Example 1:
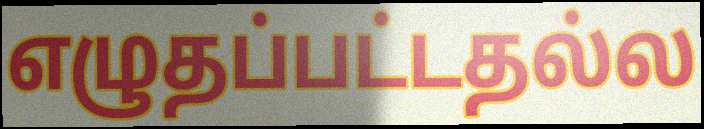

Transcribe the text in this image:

எழுதப்பட்டதல்ல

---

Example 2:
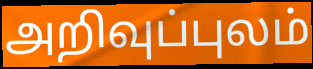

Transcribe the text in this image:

அறிவுப்புலம்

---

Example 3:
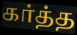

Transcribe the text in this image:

கர்த்த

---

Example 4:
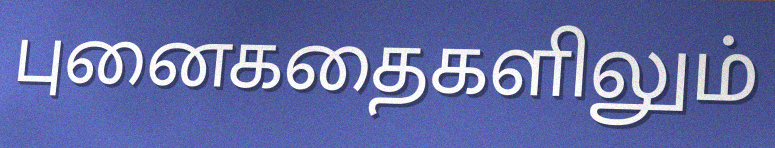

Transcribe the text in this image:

புனைகதைகளிலும்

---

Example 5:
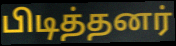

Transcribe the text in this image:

பிடித்தனர்